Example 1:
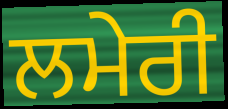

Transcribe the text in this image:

ਲਮੇਰੀ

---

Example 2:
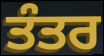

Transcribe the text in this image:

ਤੰਤਰ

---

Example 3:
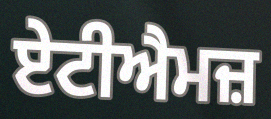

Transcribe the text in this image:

ਏਟੀਐਮਜ਼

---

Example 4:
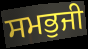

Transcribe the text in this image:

ਸਮਭੁਜੀ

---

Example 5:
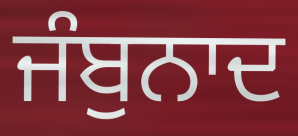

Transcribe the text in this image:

ਜੰਬੁਨਾਦ